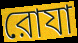
রোযা